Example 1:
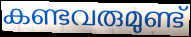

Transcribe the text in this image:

കണ്ടവരുമുണ്ട്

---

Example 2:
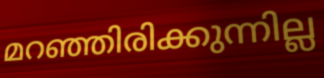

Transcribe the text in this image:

മറഞ്ഞിരിക്കുന്നില്ല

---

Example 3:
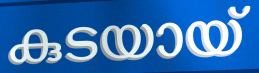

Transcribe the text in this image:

കുടയായ്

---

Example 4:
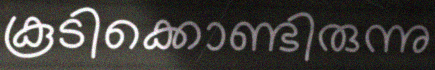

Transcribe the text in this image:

കൂടിക്കൊണ്ടിരുന്നു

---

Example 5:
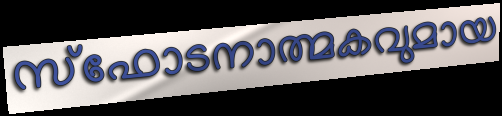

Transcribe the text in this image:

സ്ഫോടനാത്മകവുമായ